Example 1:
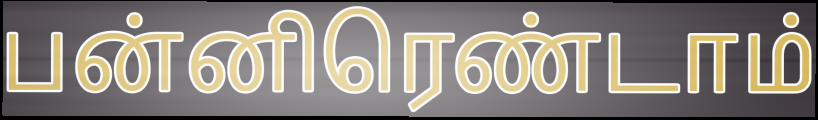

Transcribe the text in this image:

பன்னிரெண்டாம்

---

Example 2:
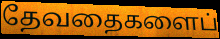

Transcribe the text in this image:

தேவதைகளைப்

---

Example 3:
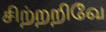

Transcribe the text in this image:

சிற்றறிவே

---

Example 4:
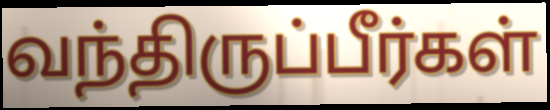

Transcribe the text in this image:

வந்திருப்பீர்கள்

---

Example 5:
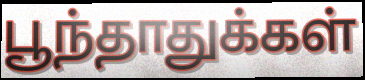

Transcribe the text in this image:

பூந்தாதுக்கள்